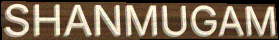
SHANMUGAM